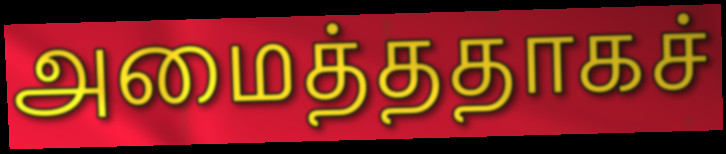
அமைத்ததாகச்